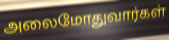
அலைமோதுவார்கள்